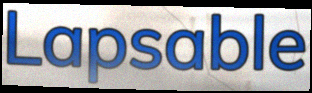
Lapsable